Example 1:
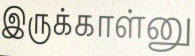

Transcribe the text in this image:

இருக்காள்னு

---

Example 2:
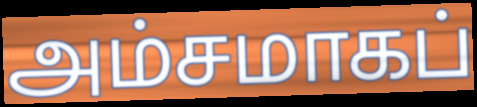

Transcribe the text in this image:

அம்சமாகப்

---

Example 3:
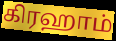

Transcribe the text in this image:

கிரஹாம்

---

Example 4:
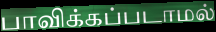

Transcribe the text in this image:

பாவிக்கப்படாமல்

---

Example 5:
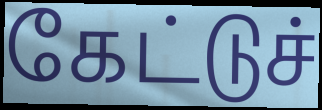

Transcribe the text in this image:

கேட்டுச்